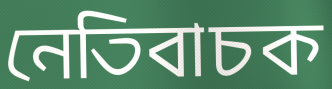
নেতিবাচক